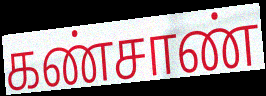
கண்சாண்